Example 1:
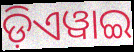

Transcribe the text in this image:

ଡ଼ିଏୱାଇ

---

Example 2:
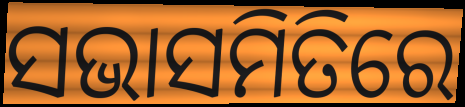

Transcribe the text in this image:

ସଭାସମିତିରେ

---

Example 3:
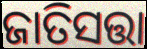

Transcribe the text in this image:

ଜାତିସତ୍ତା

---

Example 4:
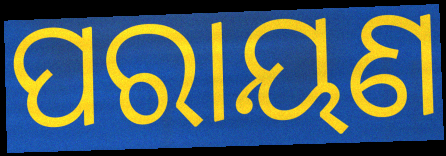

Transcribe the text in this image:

ପରାୟଣ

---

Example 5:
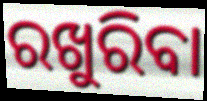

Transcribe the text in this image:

ରଖୁରିବା